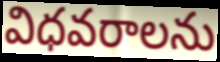
విధవరాలను